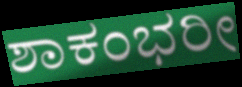
ಶಾಕಂಭರೀ